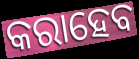
କରାହେବ